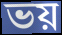
ভয়